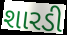
શારડી